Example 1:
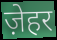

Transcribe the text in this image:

ज़ेहर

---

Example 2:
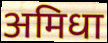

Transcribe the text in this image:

अमिधा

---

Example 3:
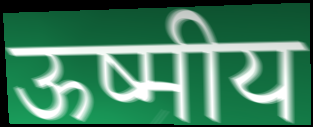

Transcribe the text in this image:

ऊष्मीय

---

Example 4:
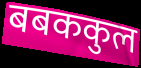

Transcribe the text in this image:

बबककुल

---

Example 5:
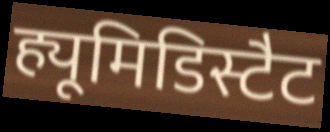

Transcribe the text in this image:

ह्यूमिडिस्टैट